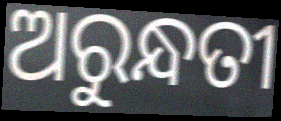
ଅରୁନ୍ଧତୀ